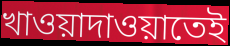
খাওয়াদাওয়াতেই